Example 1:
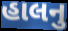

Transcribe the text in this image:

હાલનુ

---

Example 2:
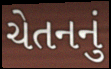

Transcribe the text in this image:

ચેતનનું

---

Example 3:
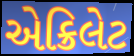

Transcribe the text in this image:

એક્રિલેટ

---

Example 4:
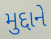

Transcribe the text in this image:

મુદ્દાને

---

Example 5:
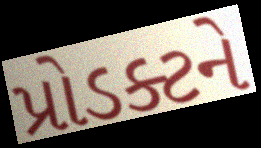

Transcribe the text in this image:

પ્રોડક્ટને